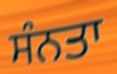
ਸੰਨਤਾ